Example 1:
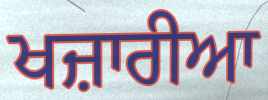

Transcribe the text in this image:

ਖਜ਼ਾਰੀਆ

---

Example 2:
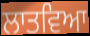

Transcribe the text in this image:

ਲਾਤਵਿਆ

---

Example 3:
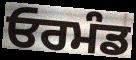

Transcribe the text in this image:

ਓਰਮੰਡ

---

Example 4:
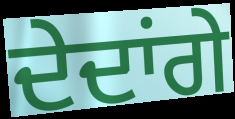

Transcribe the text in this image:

ਦੇਦਾਂਗੇ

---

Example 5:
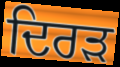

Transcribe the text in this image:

ਦਿਰੜ